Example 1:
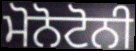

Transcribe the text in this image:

ਮੋਨੋਟੋਨੀ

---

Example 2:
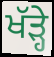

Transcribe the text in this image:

ਖੱੜ੍ਹੇ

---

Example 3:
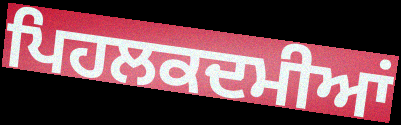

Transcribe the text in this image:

ਪਿਹਲਕਦਮੀਆਂ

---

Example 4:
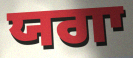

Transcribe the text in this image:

ਯਗਾ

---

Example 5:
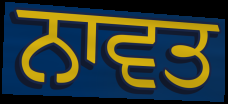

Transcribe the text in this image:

ਨਾਵਤ